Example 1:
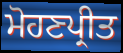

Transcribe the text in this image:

ਮੋਹਣਪ੍ਰੀਤ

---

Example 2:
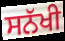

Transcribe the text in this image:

ਸਨੱਖੀ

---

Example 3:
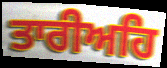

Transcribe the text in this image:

ਤਾਰੀਅਹਿ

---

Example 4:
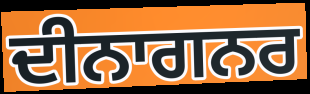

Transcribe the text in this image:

ਦੀਨਾਗਨਰ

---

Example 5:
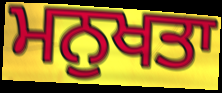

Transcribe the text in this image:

ਮਨੁਖਤਾ